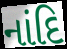
નાંદિ